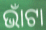
ଭାଁଟା